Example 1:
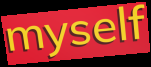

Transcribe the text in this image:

myself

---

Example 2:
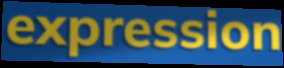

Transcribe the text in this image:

expression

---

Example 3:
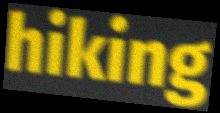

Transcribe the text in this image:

hiking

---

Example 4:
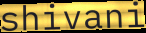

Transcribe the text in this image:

shivani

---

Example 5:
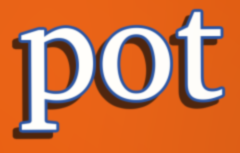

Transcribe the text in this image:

pot